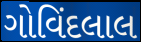
ગોવિંદલાલ